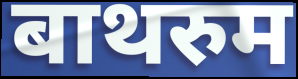
बाथरुम